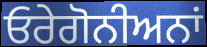
ਓਰੇਗੋਨੀਅਨਾਂ